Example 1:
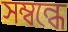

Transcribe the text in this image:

সম্বন্ধে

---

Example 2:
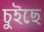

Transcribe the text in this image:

চুইছে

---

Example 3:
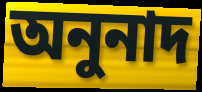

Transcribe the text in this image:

অনুনাদ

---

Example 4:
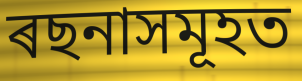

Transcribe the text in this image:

ৰছনাসমূহত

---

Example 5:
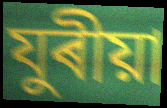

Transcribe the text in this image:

যুৰীয়া